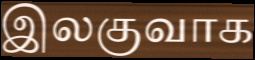
இலகுவாக